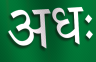
अधः